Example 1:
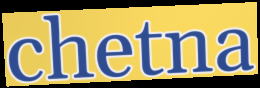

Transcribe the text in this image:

chetna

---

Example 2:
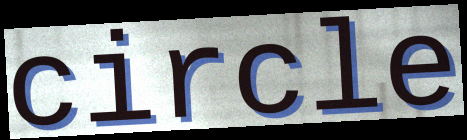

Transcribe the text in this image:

circle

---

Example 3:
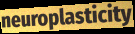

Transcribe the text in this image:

neuroplasticity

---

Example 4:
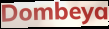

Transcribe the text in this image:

Dombeya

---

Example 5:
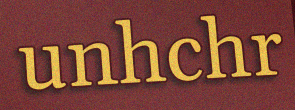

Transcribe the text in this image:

unhchr